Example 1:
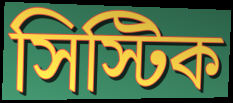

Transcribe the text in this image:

সিস্টিক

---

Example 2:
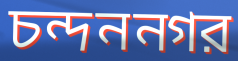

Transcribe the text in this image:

চন্দননগর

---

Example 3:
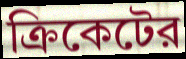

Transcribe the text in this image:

ক্রিকেটের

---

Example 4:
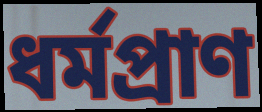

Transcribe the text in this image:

ধর্মপ্রাণ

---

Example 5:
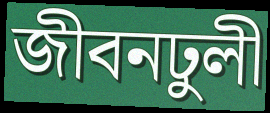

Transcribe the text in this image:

জীবনঢুলী